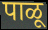
पाळू